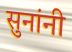
सुनांनी